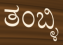
ತಂಬ್ಳಿ